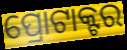
ପ୍ରୋଟାକ୍ଟର